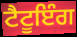
ਟੈਟੂਇੰਗ